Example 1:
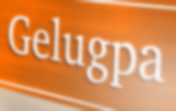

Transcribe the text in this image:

Gelugpa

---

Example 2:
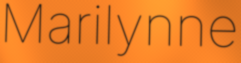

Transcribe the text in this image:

Marilynne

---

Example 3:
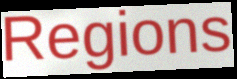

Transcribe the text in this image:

Regions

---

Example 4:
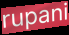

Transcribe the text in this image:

rupani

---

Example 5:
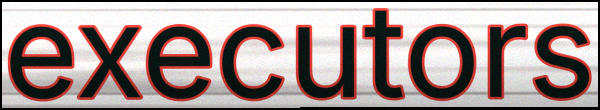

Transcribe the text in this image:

executors